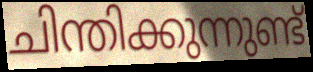
ചിന്തിക്കുന്നുണ്ട്